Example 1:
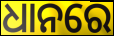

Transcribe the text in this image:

ଧାନରେ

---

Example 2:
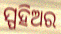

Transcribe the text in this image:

ସ୍ପହିଅର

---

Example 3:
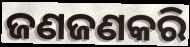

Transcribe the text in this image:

ଜଣଜଣକରି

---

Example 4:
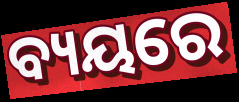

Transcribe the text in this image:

ବ୍ୟୟରେ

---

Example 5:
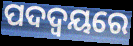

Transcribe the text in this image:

ପଦଦ୍ୱୟରେ